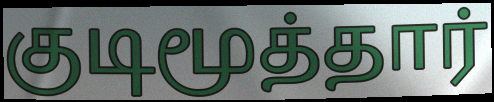
குடிமூத்தார்